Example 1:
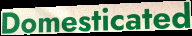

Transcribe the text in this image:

Domesticated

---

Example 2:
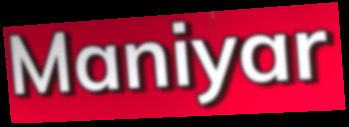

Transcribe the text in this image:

Maniyar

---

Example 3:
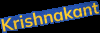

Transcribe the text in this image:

Krishnakant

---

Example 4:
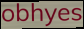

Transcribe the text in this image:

obhyes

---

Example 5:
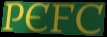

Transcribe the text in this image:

PEFC